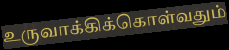
உருவாக்கிக்கொள்வதும்